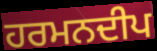
ਹਰਮਨਦੀਪ